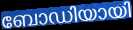
ബോഡിയായി